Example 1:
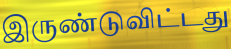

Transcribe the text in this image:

இருண்டுவிட்டது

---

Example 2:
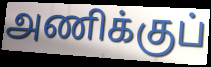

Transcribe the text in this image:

அணிக்குப்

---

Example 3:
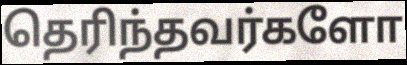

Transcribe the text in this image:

தெரிந்தவர்களோ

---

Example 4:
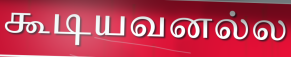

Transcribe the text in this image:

கூடியவனல்ல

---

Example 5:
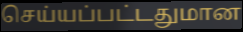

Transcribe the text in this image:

செய்யப்பட்டதுமான